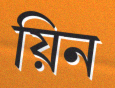
য়িন